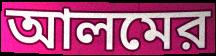
আলমের